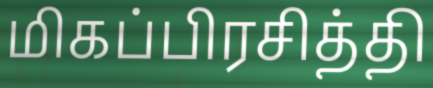
மிகப்பிரசித்தி